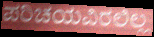
ಪರಿಚಯವಿರಲಿಲ್ಲ